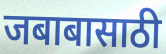
जबाबासाठी